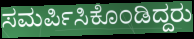
ಸಮರ್ಪಿಸಿಕೊಂಡಿದ್ದರು